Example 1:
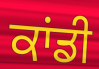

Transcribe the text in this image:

ਕਾਂਡੀ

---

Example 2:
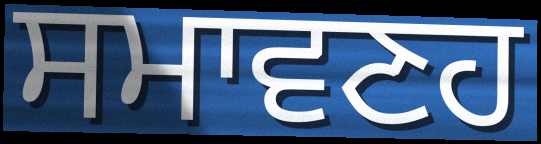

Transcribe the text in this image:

ਸਮਾਵਣਹ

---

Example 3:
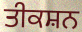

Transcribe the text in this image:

ਤੀਕਸ਼ਨ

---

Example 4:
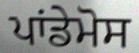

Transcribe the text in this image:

ਪਾਂਡੇਮੋਸ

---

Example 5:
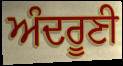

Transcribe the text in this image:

ਅੰਦਰੂਣੀ